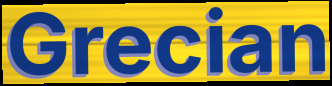
Grecian